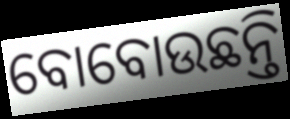
ବୋବୋଉଛନ୍ତି